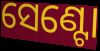
ସେଣ୍ଟୋ